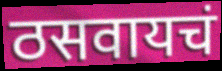
ठसवायचं